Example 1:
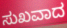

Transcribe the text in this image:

ಸುಖವಾದ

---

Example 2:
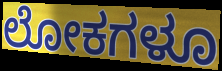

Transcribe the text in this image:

ಲೋಕಗಳೂ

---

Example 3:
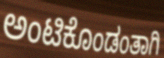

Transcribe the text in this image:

ಅಂಟಿಕೊಂಡಂತಾಗಿ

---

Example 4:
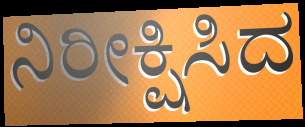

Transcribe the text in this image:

ನಿರೀಕ್ಷಿಸಿದ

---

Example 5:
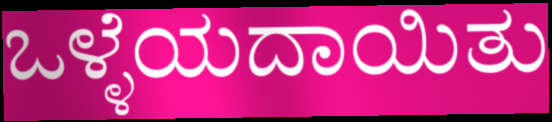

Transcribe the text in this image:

ಒಳ್ಳೆಯದಾಯಿತು